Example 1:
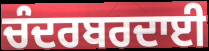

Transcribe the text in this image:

ਚੰਦਰਬਰਦਾਈ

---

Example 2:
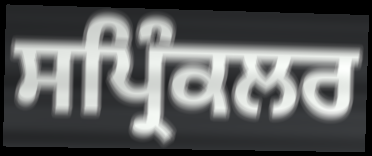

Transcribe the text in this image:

ਸਪ੍ਰਿੰਕਲਰ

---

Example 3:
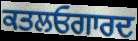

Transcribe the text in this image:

ਕਤਲਓਗਾਰਦ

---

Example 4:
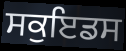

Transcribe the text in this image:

ਸਕੁਇਡਸ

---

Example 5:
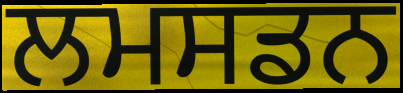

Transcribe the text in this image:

ਲਮਸਡਨ